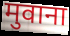
मुवाना